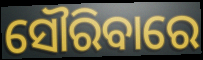
ସୌରିବାରେ